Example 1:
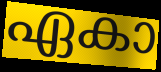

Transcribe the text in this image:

ഏകാ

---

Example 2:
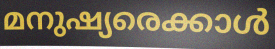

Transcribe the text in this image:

മനുഷ്യരെക്കാൾ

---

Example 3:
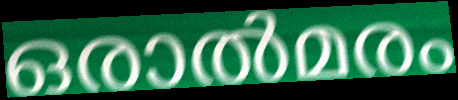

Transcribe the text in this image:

ഒരാൽമരം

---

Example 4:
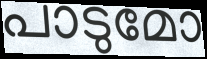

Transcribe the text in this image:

പാടുമോ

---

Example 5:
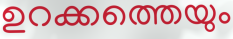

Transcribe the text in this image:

ഉറക്കത്തെയും